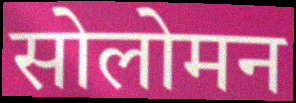
सोलोमन